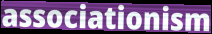
associationism